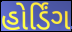
હોર્ડિંગ